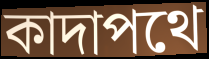
কাদাপথে